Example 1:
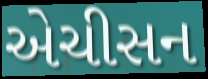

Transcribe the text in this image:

એચીસન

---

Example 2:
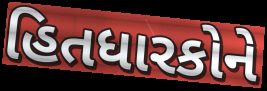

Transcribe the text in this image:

હિતધારકોને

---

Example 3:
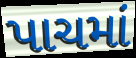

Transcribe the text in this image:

પાચમાં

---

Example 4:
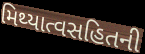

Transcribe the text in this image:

મિથ્યાત્વસહિતની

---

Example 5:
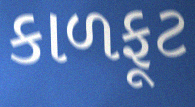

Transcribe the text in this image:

કાળફૂટ